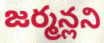
జర్మన్లని